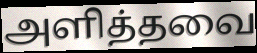
அளித்தவை